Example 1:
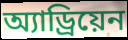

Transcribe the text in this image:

অ্যাড্রিয়েন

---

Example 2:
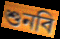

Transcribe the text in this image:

শুনবি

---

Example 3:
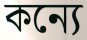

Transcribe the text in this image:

কন্যে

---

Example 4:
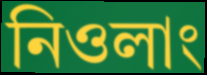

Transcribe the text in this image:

নিওলাং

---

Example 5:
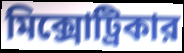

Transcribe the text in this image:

মিক্সোট্রিকার